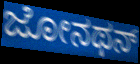
ಜೋನಥನ್